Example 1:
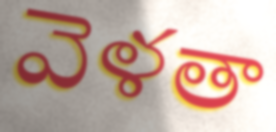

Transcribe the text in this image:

వెళతా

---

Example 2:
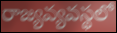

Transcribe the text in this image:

రాజ్యవ్యవస్థలో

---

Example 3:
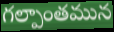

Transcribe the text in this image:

గల్పాంతమున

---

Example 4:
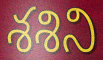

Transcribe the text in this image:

శశిని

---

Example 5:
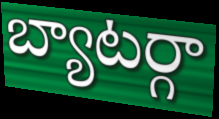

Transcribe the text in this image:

బ్యాటర్గా